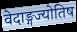
वेदाङ्गज्योतिष